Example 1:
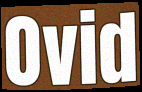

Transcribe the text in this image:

Ovid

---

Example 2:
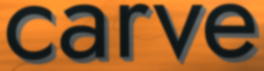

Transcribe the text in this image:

carve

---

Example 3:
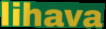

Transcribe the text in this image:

lihava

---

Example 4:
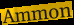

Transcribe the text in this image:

Ammon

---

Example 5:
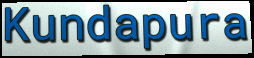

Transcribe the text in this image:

Kundapura